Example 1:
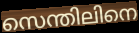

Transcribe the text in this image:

സെന്തിലിനെ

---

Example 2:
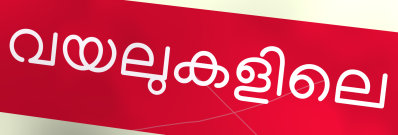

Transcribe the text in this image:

വയലുകളിലെ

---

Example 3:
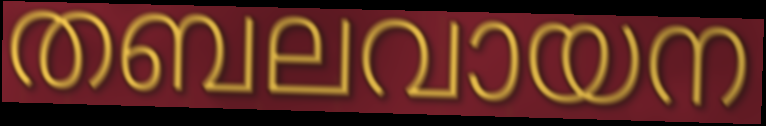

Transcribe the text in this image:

തബലവായന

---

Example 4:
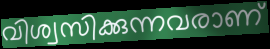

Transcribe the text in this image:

വിശ്വസിക്കുന്നവരാണ്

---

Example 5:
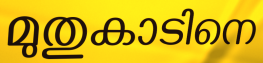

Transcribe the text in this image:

മുതുകാടിനെ